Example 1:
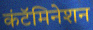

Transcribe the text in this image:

कंटॅमिनेशन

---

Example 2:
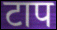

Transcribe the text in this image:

टाप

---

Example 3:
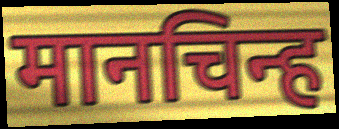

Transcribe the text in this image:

मानचिन्ह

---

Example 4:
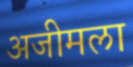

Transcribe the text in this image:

अजीमला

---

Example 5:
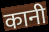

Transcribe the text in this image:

कानी